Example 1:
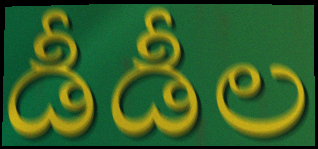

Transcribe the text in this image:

డీడీల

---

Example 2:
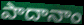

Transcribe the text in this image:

పాదానాం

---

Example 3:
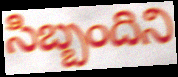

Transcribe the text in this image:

సిబ్బందిని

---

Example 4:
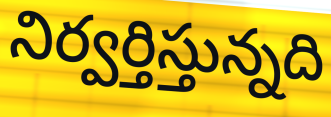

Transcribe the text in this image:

నిర్వర్తిస్తున్నది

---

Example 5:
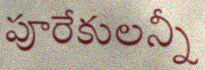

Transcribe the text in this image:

పూరేకులన్నీ